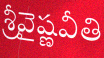
శ్రీవైష్ణవీతి